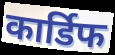
कार्डिफ